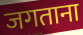
जगताना